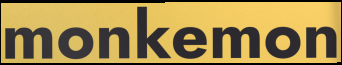
monkemon